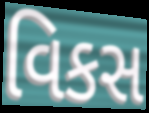
વિકસ